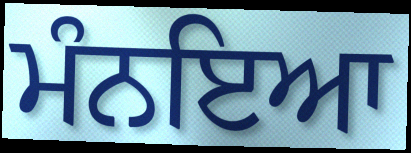
ਮੰਨਇਆ